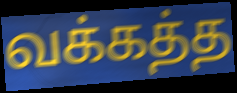
வக்கத்த